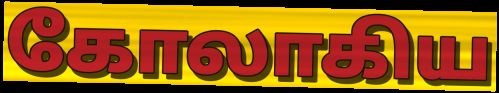
கோலாகிய